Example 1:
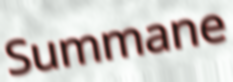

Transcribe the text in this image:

Summane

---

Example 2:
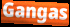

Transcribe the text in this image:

Gangas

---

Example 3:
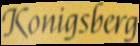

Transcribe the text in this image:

Konigsberg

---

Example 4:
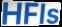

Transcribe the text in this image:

HFIs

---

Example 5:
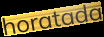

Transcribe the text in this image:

horatada